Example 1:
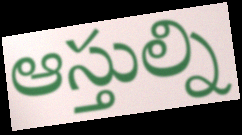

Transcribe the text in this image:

ఆస్తుల్ని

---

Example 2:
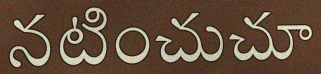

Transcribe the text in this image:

నటించుచూ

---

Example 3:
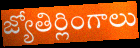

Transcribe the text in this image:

జ్యోతిర్లింగాలు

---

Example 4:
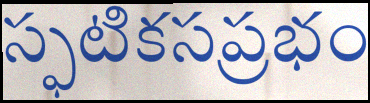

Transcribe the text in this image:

స్ఫటికసప్రభం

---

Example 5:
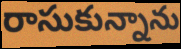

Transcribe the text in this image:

రాసుకున్నాను